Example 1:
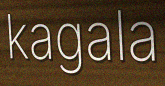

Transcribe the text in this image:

kagala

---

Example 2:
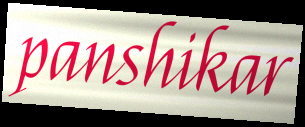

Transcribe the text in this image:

panshikar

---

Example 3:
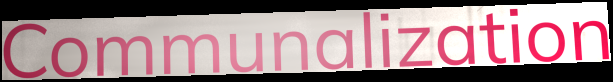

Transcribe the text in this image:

Communalization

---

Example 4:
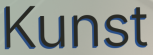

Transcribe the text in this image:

Kunst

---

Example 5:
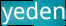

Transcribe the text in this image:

yeden